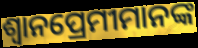
ଶ୍ଵାନପ୍ରେମୀମାନଙ୍କ